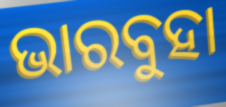
ଭାରବୁହା